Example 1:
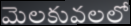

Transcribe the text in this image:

మెలకువలలో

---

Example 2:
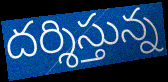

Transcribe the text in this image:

దర్శిస్తున్న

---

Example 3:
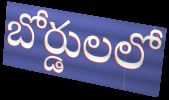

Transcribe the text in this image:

బోర్డులలో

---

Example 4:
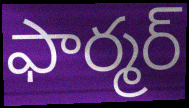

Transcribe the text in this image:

ఫార్మర్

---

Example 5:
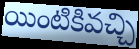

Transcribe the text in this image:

యింటికివచ్చి